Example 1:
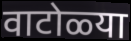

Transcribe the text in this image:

वाटोळ्या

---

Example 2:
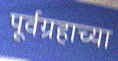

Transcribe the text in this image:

पूर्वग्रहाच्या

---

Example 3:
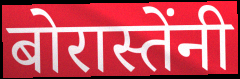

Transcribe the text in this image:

बोरास्तेंनी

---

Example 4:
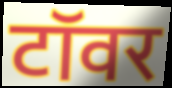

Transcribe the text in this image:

टॉवर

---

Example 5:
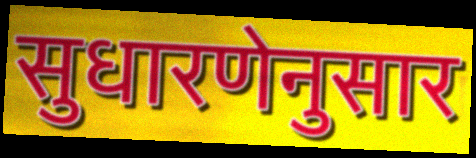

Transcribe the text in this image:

सुधारणेनुसार